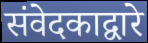
संवेदकाद्वारे